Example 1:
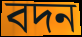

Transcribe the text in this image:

বদন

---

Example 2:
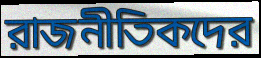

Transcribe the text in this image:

রাজনীতিকদের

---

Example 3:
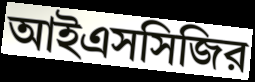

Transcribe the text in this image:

আইএসসিজির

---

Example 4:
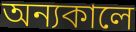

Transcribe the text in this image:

অন্যকালে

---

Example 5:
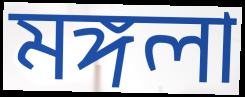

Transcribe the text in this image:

মঙ্গলা